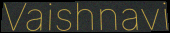
Vaishnavi